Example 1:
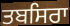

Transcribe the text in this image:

ਤਬਸਿਰਾ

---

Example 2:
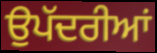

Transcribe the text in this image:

ਉਪੱਦਰੀਆਂ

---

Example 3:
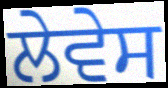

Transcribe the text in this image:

ਲੇਵੇਸ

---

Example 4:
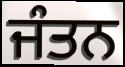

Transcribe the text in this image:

ਜੰਤਨ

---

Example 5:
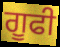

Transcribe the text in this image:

ਗੂਫੀ